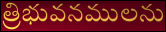
త్రిభువనములను